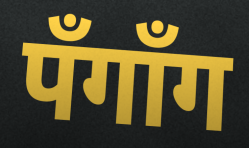
पँगाँग